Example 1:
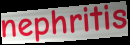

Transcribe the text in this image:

nephritis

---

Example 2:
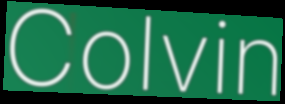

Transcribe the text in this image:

Colvin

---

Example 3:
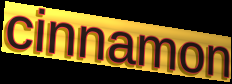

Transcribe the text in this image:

cinnamon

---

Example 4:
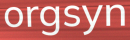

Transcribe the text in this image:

orgsyn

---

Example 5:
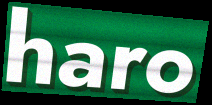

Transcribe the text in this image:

haro